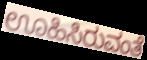
ಊಹಿಸಿರುವಂತೆ